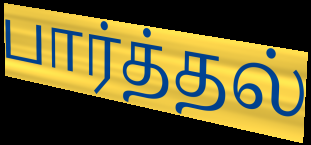
பார்த்தல்